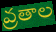
వ్రతాల